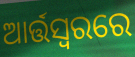
ଆର୍ତ୍ତସ୍ଵରରେ